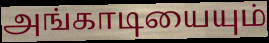
அங்காடியையும்